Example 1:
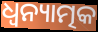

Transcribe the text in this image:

ଧ୍ୱନ୍ୟାତ୍ମକ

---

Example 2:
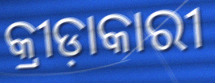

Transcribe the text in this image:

କ୍ରୀଡ଼ାକାରୀ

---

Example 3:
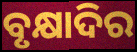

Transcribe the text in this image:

ବୃକ୍ଷାଦିର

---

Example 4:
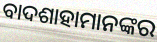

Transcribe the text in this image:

ବାଦଶାହାମାନଙ୍କର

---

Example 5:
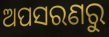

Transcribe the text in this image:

ଅପସରଣରୁ